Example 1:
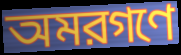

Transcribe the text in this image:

অমরগণে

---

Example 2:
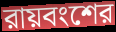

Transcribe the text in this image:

রায়বংশের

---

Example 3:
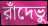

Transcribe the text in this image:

রাঁদেভু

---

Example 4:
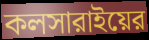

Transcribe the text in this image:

কলসারাইয়ের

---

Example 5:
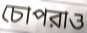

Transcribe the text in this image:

চোপরাও